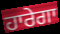
ਹਾਰੇਗਾ